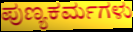
ಪುಣ್ಯಕರ್ಮಗಳು